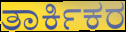
ತಾರ್ಕಿಕರ